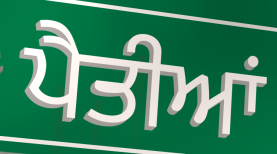
ਪੈਤੀਆਂ